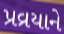
પ્રવ્રયાને